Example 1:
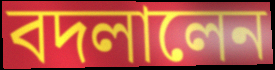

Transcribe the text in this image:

বদলালেন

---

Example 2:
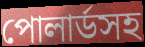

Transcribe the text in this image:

পোলার্ডসহ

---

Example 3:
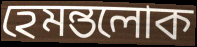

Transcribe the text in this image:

হেমন্তলোক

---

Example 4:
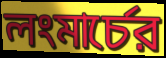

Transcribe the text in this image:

লংমার্চের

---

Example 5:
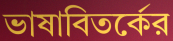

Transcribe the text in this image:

ভাষাবিতর্কের